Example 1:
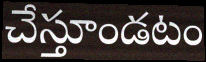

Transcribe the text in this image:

చేస్తూండటం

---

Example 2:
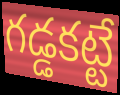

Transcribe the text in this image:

గడ్డకట్టే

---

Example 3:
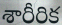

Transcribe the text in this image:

శారీరిక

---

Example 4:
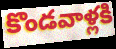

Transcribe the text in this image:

కొండవాళ్లకి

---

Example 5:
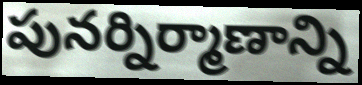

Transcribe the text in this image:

పునర్నిర్మాణాన్ని